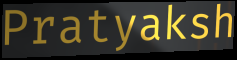
Pratyaksh